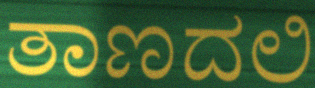
ತಾಣದಲಿ